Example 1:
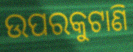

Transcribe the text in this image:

ଉପରକୁଟାଣି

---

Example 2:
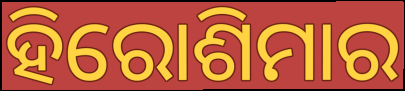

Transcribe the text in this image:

ହିରୋଶିମାର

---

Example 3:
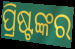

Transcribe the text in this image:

ପ୍ରିଷ୍ଟଙ୍କର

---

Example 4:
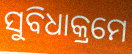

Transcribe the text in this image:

ସୁବିଧାକ୍ରମେ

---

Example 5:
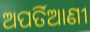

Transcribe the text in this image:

ଅପର୍ତିଆଣୀ